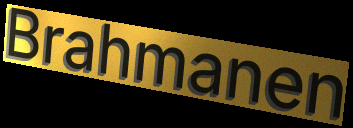
Brahmanen